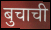
बुचाची